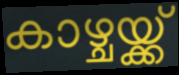
കാഴ്ചയ്ക്ക്